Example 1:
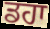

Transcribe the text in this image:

ਡਹਾ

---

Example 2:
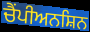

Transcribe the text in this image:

ਚੈਂਪੀਅਨਸ਼ਿਨ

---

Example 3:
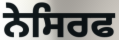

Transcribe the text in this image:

ਨੇਸਿਰਫ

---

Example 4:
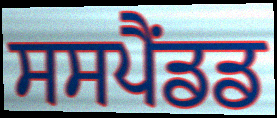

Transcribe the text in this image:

ਸਸਪੈਂਡਡ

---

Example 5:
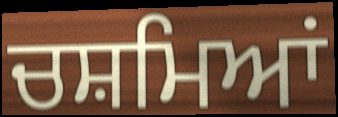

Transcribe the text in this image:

ਚਸ਼ਮਿਆਂ